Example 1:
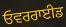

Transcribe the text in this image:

ਓਵਰਰਾਈਡ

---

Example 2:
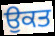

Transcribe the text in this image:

ਉਕਤ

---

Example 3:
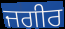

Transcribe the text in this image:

ਜਗੀਰ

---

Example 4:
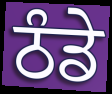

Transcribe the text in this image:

ਠੰਡੇ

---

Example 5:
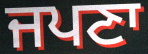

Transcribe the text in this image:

ਜਪਣਾ